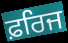
ਫ਼ਰਿਜ